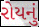
રોયનું